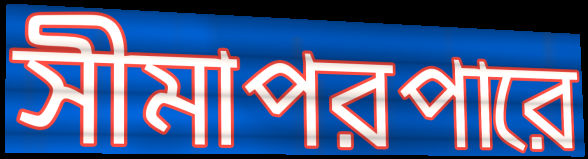
সীমাপরপারে